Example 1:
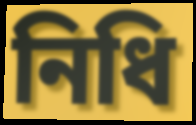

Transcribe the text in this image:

নিধি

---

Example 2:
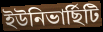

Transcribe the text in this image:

ইউনিভাৰ্ছিটি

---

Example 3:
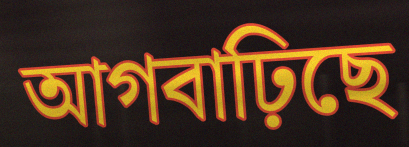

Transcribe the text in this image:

আগবাঢ়িছে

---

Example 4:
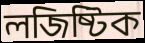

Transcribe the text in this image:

লজিষ্টিক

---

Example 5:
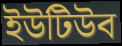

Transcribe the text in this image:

ইউটিউব